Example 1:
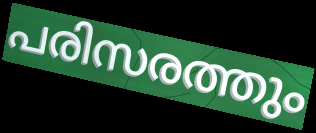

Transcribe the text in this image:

പരിസരത്തും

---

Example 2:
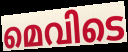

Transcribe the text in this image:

മെവിടെ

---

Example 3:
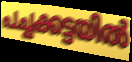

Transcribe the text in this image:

പച്ചക്കട്ടയിൽ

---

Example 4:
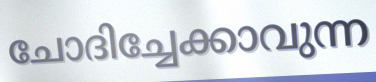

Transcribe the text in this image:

ചോദിച്ചേക്കാവുന്ന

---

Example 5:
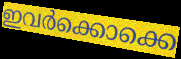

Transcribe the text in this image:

ഇവർക്കൊക്കെ